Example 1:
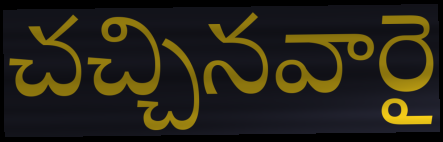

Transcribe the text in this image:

చచ్చినవారై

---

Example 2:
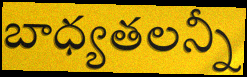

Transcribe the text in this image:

బాధ్యతలన్నీ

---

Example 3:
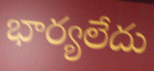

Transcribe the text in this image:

భార్యలేదు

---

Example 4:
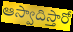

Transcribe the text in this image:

ఆస్వాదిస్తారో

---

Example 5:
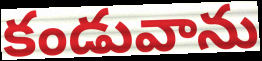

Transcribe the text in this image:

కండువాను